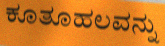
ಕೂತೂಹಲವನ್ನು